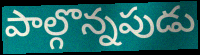
పాల్గొన్నపుడు